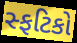
સ્ફટિકો